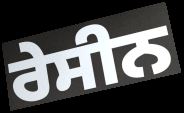
ਰੇਸੀਨ